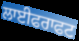
ਲਾਈਫਰਾਫਟ